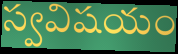
స్వవిషయం